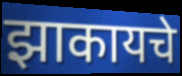
झाकायचे